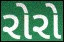
રોરો